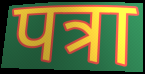
पत्रा